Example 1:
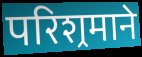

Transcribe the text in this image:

परिश्रमाने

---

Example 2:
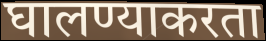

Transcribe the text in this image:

घालण्याकरता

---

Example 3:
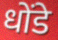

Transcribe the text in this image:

धोंडे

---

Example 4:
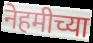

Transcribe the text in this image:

नेहमीच्या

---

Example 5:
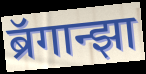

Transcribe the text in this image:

ब्रॅगान्झा